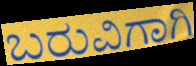
ಬರುವಿಗಾಗಿ